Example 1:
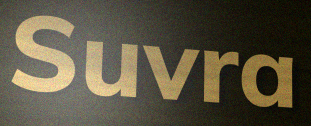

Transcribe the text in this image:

Suvra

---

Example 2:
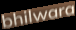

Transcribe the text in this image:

bhilwara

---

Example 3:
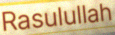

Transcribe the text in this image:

Rasulullah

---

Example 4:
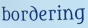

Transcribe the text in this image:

bordering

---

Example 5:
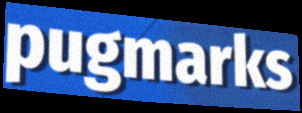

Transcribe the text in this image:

pugmarks